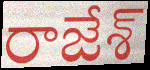
రాజేశ్